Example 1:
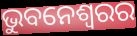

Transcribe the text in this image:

ଭୁବନେଶ୍ୱରର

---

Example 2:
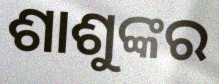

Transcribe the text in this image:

ଶାଶୁଙ୍କର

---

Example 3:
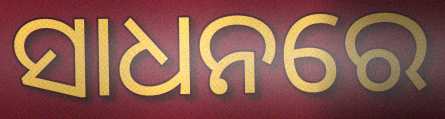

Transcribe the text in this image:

ସାଧନରେ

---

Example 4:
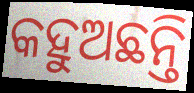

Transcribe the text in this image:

କହୁଅଛନ୍ତି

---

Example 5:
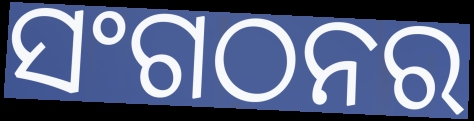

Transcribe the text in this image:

ସଂଗଠନର